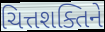
ચિત્તશક્તિને